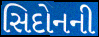
સિદોનની